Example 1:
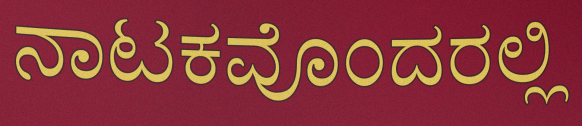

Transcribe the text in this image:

ನಾಟಕವೊಂದರಲ್ಲಿ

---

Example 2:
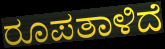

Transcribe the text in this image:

ರೂಪತಾಳಿದೆ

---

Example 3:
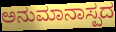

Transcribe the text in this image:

ಅನುಮಾನಾಸ್ಪದ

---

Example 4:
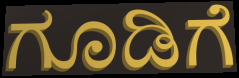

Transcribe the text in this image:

ಗೂಡಿಗೆ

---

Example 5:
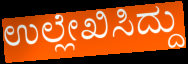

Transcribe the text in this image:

ಉಲ್ಲೇಖಿಸಿದ್ದು